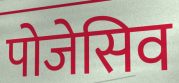
पोजेसिव